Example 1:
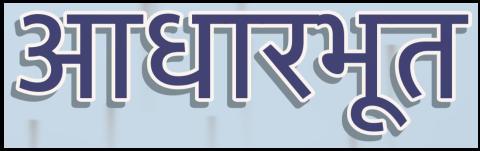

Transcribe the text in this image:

आधारभूत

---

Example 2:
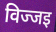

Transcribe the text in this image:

विज्जइ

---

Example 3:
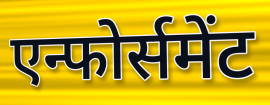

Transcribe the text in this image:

एन्फोर्समेंट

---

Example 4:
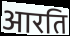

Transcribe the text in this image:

आरति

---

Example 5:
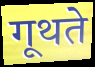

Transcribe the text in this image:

गूथते